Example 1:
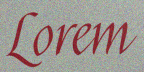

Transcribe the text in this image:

Lorem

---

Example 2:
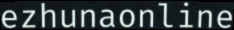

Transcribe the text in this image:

ezhunaonline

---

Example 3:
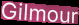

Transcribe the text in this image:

Gilmour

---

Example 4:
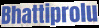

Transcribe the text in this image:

Bhattiprolu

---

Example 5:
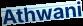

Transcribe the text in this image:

Athwani